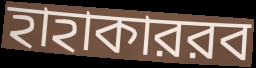
হাহাকাররব